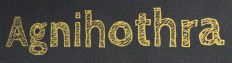
Agnihothra